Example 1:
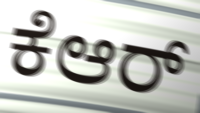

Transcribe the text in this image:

ಕೆಆರ್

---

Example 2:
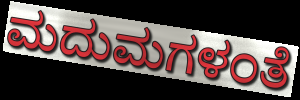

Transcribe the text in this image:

ಮದುಮಗಳಂತೆ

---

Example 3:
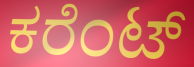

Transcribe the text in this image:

ಕರೆಂಟ್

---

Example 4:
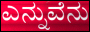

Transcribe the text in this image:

ಎನ್ನುವೆನು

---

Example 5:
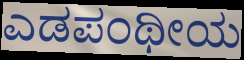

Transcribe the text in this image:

ಎಡಪಂಥೀಯ